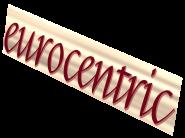
eurocentric